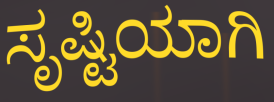
ಸೃಷ್ಟಿಯಾಗಿ